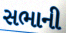
સભાની